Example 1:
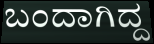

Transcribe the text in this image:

ಬಂದಾಗಿದ್ದ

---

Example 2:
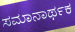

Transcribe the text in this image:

ಸಮಾನಾರ್ಥಕ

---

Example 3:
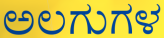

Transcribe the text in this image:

ಅಲಗುಗಳ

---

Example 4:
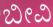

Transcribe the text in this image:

ಬೀವಿ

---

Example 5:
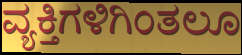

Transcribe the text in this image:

ವ್ಯಕ್ತಿಗಳಿಗಿಂತಲೂ